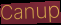
Canup